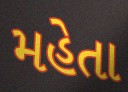
મહેતા